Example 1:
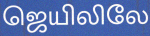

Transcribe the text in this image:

ஜெயிலிலே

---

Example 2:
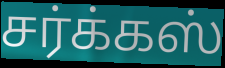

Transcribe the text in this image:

சர்க்கஸ்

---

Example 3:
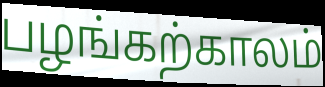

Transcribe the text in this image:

பழங்கற்காலம்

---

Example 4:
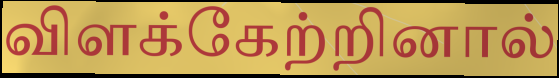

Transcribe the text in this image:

விளக்கேற்றினால்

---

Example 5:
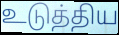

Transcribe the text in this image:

உடுத்திய